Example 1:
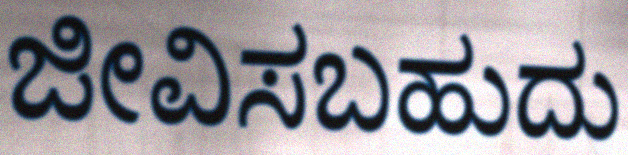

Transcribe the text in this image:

ಜೀವಿಸಬಹುದು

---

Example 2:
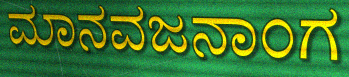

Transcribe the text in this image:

ಮಾನವಜನಾಂಗ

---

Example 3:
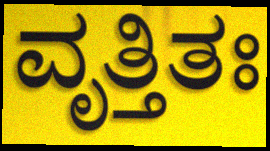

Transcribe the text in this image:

ವೃತ್ತಿತಃ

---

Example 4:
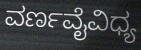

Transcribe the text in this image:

ವರ್ಣವೈವಿಧ್ಯ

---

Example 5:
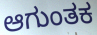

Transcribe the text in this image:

ಆಗುಂತಕ